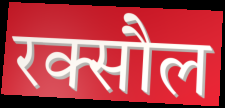
रक्सौल